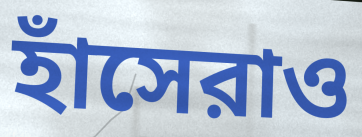
হাঁসেরাও